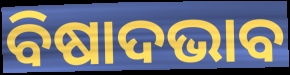
ବିଷାଦଭାବ